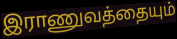
இராணுவத்தையும்